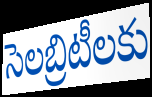
సెలబ్రిటీలకు